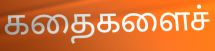
கதைகளைச்